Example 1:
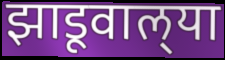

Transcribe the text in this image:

झाडूवाल्या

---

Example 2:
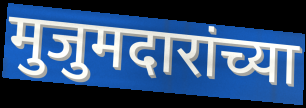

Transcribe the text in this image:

मुजुमदारांच्या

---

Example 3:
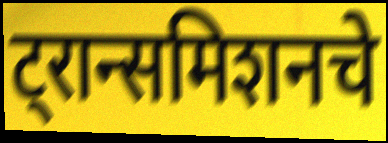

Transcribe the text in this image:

ट्रान्समिशनचे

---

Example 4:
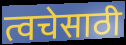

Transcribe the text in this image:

त्वचेसाठी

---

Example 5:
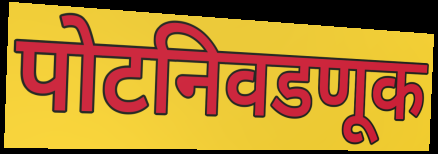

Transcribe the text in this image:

पोटनिवडणूक